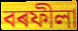
বৰফীলা